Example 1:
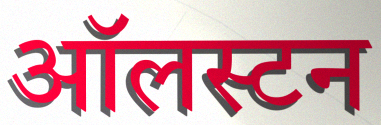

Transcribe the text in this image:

ऑलस्टन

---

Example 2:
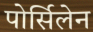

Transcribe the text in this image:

पोर्सिलेन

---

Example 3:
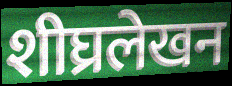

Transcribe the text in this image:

शीघ्रलेखन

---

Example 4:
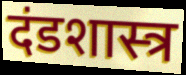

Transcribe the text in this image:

दंडशास्त्र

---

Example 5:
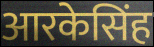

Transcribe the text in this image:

आरकेसिंह